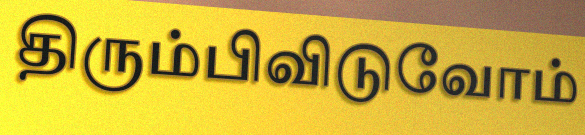
திரும்பிவிடுவோம்